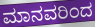
ಮಾನವರಿಂದ